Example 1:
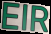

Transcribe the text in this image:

EIR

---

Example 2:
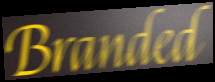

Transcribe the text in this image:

Branded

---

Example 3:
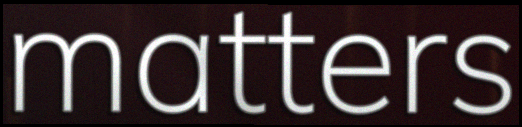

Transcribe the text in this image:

matters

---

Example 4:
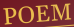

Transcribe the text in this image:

POEM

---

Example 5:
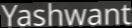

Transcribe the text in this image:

Yashwant